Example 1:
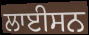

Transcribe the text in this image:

ਲਾਈਸਨ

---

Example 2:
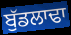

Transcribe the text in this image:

ਬੁੱਡਲਾਢਾ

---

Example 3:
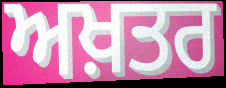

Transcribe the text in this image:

ਅਖ਼ਤਰ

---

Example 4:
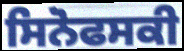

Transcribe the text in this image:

ਸਿਨੋਫਸਕੀ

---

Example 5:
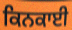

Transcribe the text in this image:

ਕਿਨਕਾਈ